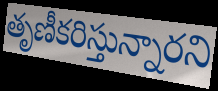
తృణీకరిస్తున్నారని